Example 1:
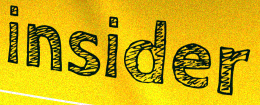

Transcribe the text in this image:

insider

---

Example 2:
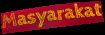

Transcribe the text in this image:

Masyarakat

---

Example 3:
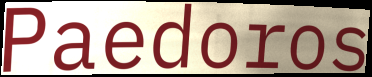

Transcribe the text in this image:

Paedoros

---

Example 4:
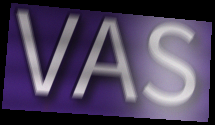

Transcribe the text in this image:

VAS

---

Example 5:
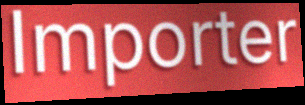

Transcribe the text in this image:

Importer